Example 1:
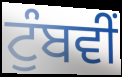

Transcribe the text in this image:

ਟੁੰਬਵੀਂ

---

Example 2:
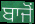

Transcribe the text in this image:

ਬਾਜੋਂ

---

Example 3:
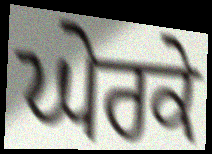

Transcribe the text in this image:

ਘੇਰਕੇ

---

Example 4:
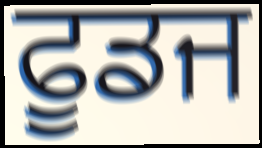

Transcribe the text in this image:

ਫੂਡਜ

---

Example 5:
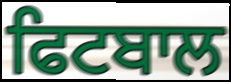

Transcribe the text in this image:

ਫਿਟਬਾਲ